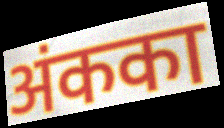
अंकका